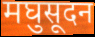
मघुसूदन